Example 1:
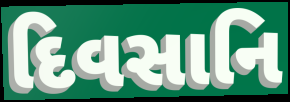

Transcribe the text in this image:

દિવસાનિ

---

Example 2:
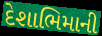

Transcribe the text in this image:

દેશાભિમાની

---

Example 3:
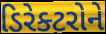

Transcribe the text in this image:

ડિરેક્ટરોને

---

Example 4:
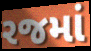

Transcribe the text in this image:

રજમાં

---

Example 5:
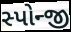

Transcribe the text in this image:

સ્પોન્જી